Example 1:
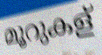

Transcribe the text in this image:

മൂറുകള്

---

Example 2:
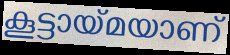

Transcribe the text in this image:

കൂട്ടായ്മയാണ്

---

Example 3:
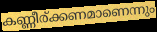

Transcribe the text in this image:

കണ്ണീര്ക്കണമാണെന്നും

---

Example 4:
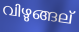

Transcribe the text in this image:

വിഴുങ്ങല്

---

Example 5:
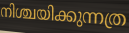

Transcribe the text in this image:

നിശ്ചയിക്കുന്നത്ര